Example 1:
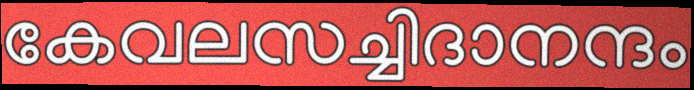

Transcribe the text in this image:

കേവലസച്ചിദാനന്ദം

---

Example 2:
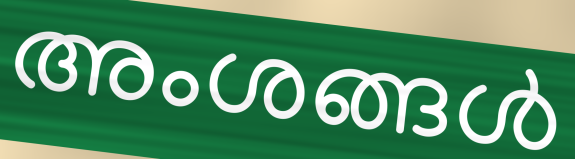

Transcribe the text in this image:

അംശങ്ങൾ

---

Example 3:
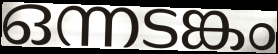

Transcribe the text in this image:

ഒന്നടങ്കം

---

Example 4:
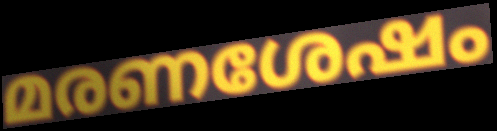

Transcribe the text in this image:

മരണശേഷം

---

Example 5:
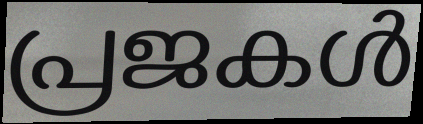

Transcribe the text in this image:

പ്രജകൾ